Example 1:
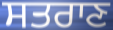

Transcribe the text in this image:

ਸਤਰਾਣ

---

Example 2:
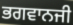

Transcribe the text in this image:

ਭਗਵਾਨਜੀ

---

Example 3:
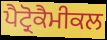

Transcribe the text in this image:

ਪੈਟ੍ਰੋਕੈਮੀਕਲ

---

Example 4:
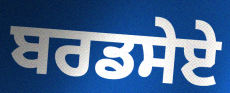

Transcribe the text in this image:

ਬਰਡਸੇਏ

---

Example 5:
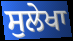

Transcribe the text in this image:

ਸੁਲੇਖਾ